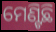
ମେଣ୍ଟିଛି